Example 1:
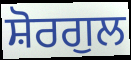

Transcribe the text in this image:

ਸ਼ੋਰਗੁਲ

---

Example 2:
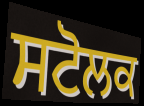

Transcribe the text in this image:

ਸਟੋਲਕ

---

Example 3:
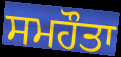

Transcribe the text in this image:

ਸਮਹੌਤਾ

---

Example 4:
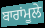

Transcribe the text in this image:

ਬਾਰਾਂਮੂਲੇ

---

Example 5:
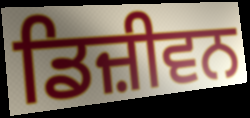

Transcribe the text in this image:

ਡਿਜ਼ੀਵਨ